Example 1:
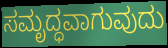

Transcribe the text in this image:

ಸಮೃದ್ಧವಾಗುವುದು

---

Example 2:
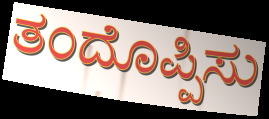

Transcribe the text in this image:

ತಂದೊಪ್ಪಿಸು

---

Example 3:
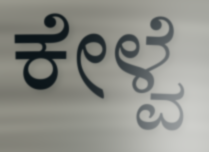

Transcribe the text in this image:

ಕೇಳ್ವೆ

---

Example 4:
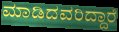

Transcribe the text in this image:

ಮಾಡಿದವರಿದ್ದಾರೆ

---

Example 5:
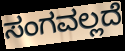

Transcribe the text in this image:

ಸಂಗವಲ್ಲದೆ